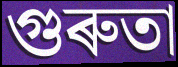
গুৰুতা